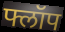
फ्लॉप